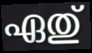
ഏതു്